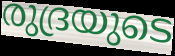
രുദ്രയുടെ